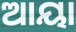
ଆୟା